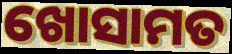
ଖୋସାମତ